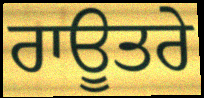
ਰਾਊਤਰੇ